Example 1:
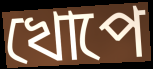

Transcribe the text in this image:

খোপে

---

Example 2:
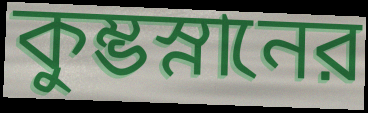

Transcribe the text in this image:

কুম্ভস্নানের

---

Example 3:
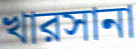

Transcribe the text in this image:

খারসানা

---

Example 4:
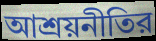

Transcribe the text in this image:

আশ্রয়নীতির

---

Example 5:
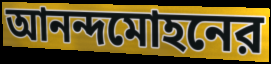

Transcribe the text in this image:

আনন্দমোহনের